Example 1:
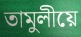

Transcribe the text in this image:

তামুলীয়ে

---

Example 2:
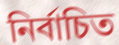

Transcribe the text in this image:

নিৰ্বাচিত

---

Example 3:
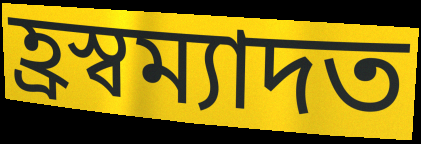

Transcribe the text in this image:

হ্ৰস্বম্যাদত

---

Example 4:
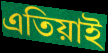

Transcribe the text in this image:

এতিয়াই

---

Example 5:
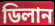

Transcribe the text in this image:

ডিলান